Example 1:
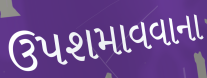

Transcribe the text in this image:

ઉપશમાવવાના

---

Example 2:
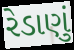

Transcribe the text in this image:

રેડાણું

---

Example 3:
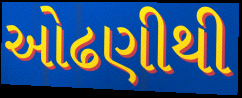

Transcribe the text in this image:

ઓઢણીથી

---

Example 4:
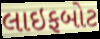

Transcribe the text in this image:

લાઇફબોટ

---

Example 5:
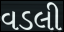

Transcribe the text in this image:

વડલી